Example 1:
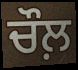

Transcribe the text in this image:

ਚੌਲ਼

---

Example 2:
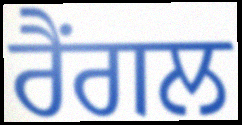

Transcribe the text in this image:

ਰੈਂਗਲ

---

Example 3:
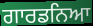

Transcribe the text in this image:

ਗਾਰਡਨਿਆ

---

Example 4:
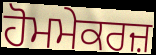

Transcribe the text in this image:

ਹੋਮਮੇਕਰਜ਼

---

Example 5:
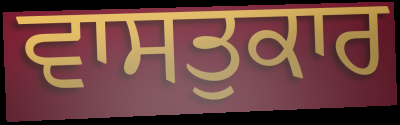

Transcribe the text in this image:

ਵਾਸਤੁਕਾਰ